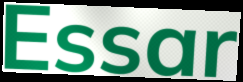
Essar